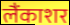
लैंकाशर